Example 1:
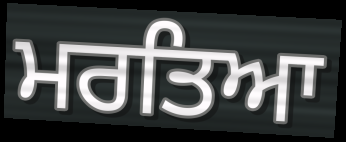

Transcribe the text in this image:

ਮਰਤਿਆ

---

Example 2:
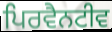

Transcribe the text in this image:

ਪਿਰਵੈਨਟੀਵ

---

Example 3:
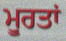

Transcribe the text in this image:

ਮੂਰਤਾਂ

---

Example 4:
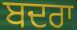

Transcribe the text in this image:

ਬਦਰਾ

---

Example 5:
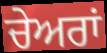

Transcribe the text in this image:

ਚੇਅਰਾਂ